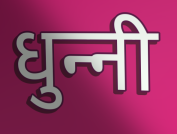
धुन्नी